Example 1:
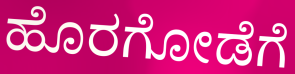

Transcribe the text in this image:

ಹೊರಗೋಡೆಗೆ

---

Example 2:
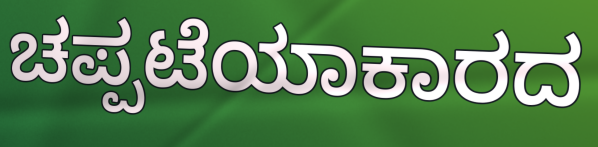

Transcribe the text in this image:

ಚಪ್ಪಟೆಯಾಕಾರದ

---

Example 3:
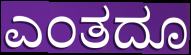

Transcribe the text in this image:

ಎಂತದೂ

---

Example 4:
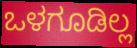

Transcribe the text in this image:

ಒಳಗೂಡಿಲ್ಲ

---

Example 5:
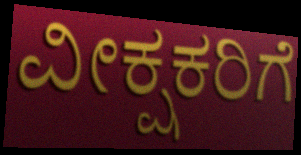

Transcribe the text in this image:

ವೀಕ್ಷಕರಿಗೆ